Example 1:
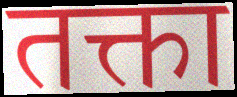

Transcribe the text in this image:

तक्ता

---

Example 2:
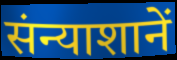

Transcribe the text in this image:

संन्याशानें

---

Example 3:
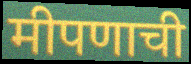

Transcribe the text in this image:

मीपणाची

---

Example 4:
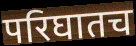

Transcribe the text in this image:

परिघातच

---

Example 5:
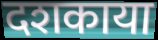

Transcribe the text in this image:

दशकाया